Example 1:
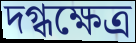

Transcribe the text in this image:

দগ্ধক্ষেত্র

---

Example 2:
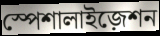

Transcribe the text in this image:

স্পেশালাইজ়েশন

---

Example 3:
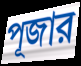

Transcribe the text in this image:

পূজার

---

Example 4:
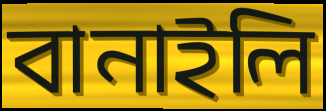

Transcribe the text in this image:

বানাইলি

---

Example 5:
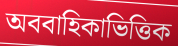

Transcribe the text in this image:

অববাহিকাভিত্তিক